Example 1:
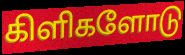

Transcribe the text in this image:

கிளிகளோடு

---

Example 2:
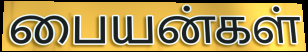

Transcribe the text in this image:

பையன்கள்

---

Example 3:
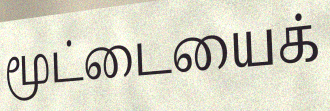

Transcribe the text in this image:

மூட்டையைக்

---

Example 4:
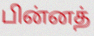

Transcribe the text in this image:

பின்னத்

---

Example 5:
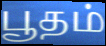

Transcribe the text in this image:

பூதம்